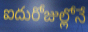
ఐదురోజుల్లోనే